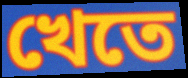
খেতে